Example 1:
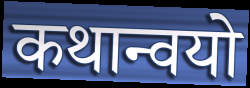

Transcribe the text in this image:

कथान्वयो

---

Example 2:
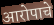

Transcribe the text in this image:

आरोपाचे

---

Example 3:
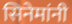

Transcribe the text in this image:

सिनेमांनी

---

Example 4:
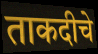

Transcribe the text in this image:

ताकदीचे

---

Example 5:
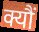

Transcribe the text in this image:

क्यौं